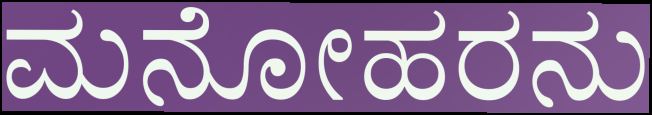
ಮನೋಹರನು